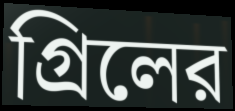
গ্রিলের